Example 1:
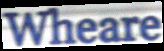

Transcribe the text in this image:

Wheare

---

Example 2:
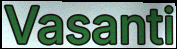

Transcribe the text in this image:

Vasanti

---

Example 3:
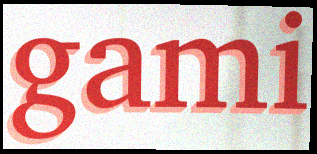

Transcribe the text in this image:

gami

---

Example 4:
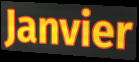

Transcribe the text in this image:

Janvier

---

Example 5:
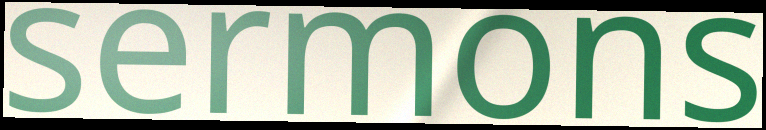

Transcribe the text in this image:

sermons